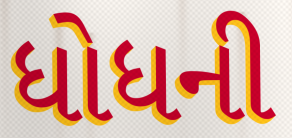
ધોધની